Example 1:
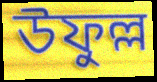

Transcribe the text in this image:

উফুল্ল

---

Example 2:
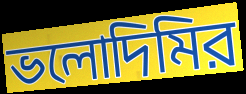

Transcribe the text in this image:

ভলোদিমির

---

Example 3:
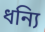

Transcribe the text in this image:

ধন্যি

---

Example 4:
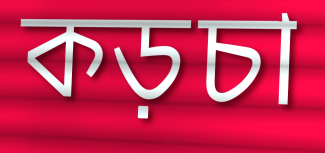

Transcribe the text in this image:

কড়চা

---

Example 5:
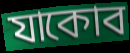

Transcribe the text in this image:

যাকোব